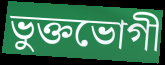
ভুক্তভোগী